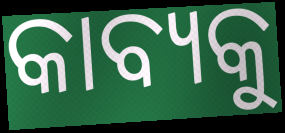
କାବ୍ୟକୁ